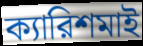
ক্যারিশমাই